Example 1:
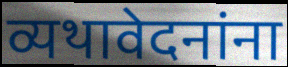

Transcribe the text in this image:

व्यथावेदनांना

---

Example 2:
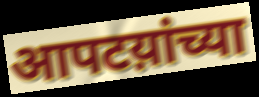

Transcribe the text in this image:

आपटय़ांच्या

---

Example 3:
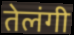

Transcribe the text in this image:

तेलंगी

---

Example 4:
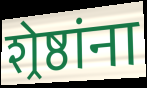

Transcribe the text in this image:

श्रेष्ठांना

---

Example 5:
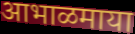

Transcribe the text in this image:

आभाळमाया